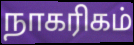
நாகரிகம்